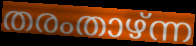
തരംതാഴ്ന്ന